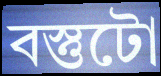
বস্তুটো